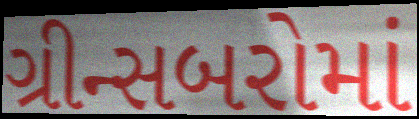
ગ્રીન્સબરોમાં